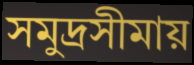
সমুদ্রসীমায়